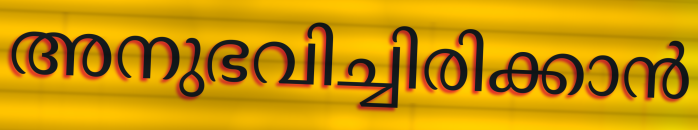
അനുഭവിച്ചിരിക്കാൻ